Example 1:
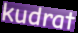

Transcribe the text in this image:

kudrat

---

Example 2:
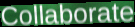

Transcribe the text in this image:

Collaborate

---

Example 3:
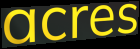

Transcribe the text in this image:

acres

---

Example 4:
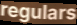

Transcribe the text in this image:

regulars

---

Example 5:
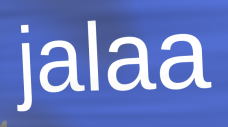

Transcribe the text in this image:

jalaa